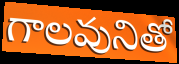
గాలవునితో